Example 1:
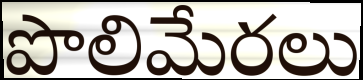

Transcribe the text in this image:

పొలిమేరలు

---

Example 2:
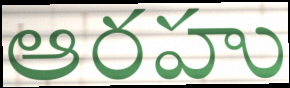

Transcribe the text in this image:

ఆరహు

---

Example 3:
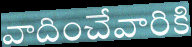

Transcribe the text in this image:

వాదించేవారికి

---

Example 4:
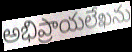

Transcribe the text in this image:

అభిప్రాయలేఖను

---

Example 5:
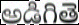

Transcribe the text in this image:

అడిగితె